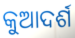
କୁଆଦର୍ଶ